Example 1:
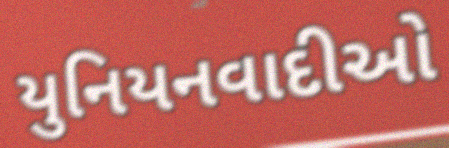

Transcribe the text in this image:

યુનિયનવાદીઓ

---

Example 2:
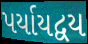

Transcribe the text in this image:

પર્યાયદ્વય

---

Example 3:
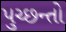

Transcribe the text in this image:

પુચ્છન્તો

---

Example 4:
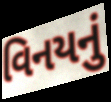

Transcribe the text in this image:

વિનયનું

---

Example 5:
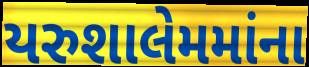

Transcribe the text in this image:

યરુશાલેમમાંના